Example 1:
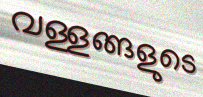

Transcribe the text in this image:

വള്ളങ്ങളുടെ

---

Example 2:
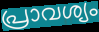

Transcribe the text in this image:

പ്രാവശ്യം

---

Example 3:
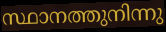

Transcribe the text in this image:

സ്ഥാനത്തുനിന്നു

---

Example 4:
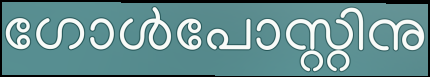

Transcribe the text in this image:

ഗോൾപോസ്റ്റിനു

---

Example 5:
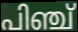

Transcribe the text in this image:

പിഞ്ച്